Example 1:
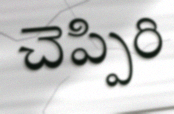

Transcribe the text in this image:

చెప్పిరి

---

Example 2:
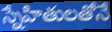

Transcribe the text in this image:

స్నేహితులతోనే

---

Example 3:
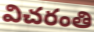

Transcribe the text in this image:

విచరంతి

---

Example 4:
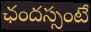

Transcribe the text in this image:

ఛందస్సంటే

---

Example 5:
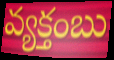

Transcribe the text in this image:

వ్యక్తంబు